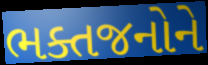
ભક્તજનોને